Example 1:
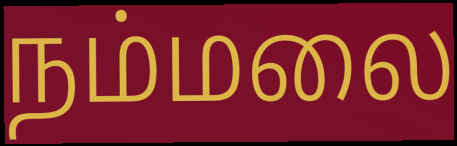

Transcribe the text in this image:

நம்மலை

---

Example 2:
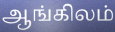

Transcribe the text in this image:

ஆங்கிலம்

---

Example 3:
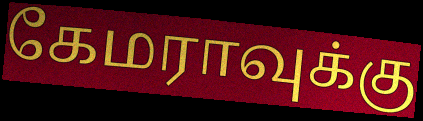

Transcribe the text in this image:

கேமராவுக்கு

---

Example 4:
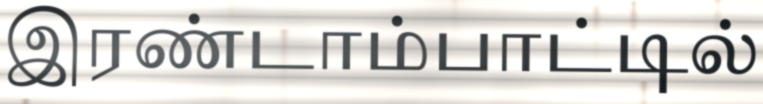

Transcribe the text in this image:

இரண்டாம்பாட்டில்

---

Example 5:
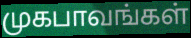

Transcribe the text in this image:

முகபாவங்கள்